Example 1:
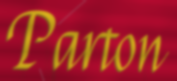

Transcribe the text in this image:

Parton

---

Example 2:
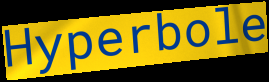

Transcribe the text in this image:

Hyperbole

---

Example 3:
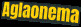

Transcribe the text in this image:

Aglaonema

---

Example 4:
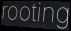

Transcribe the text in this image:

rooting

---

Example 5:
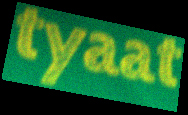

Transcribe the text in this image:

tyaat